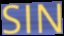
SIN